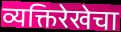
व्यक्तिरेखेचा